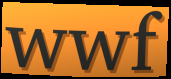
wwf